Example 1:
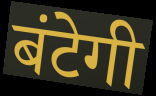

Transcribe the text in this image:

बंटेगी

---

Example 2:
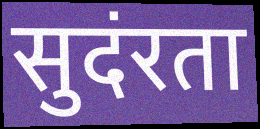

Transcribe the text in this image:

सुदंरता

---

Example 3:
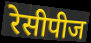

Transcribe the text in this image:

रेसीपीज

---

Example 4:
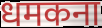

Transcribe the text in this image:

धमकना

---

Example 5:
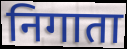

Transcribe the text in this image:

निगाता